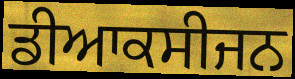
ਡੀਆਕਸੀਜਨ